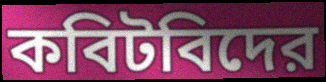
কবিটবিদের